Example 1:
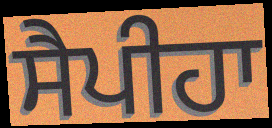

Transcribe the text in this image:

ਸੈਪੀਹਾ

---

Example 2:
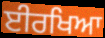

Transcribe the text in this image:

ਈਰਖਿਆ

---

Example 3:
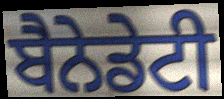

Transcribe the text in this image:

ਬੈਨੇਡੇਟੀ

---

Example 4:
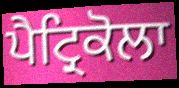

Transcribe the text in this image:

ਪੈਟ੍ਰਿਕੋਲਾ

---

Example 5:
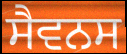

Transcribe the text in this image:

ਸੈਵਨਸ